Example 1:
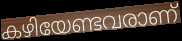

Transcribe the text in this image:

കഴിയേണ്ടവരാണ്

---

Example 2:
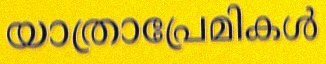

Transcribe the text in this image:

യാത്രാപ്രേമികൾ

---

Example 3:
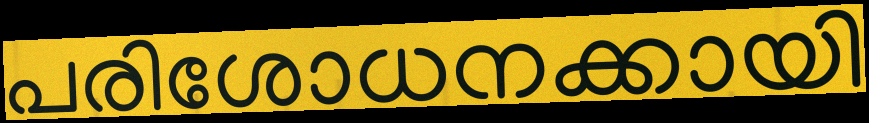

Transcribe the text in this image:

പരിശോധനക്കായി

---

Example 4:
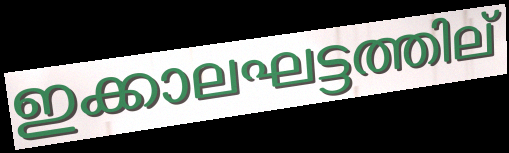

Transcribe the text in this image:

ഇക്കാലഘട്ടത്തില്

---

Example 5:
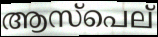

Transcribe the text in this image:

ആസ്പെല്